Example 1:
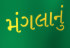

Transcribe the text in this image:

મંગલાનું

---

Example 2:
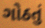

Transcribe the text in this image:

ગોઠતું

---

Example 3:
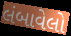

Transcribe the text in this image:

લંબાવેલો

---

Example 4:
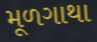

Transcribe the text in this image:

મૂળગાથા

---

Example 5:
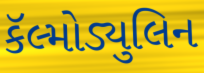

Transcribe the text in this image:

કૅલ્મોડ્યુલિન